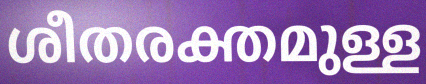
ശീതരക്തമുള്ള